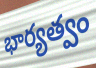
భార్యత్వం